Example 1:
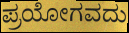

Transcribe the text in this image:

ಪ್ರಯೋಗವದು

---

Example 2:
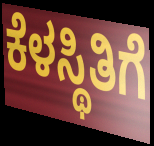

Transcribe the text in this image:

ಕೆಳಸ್ಥಿತಿಗೆ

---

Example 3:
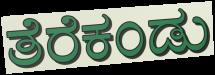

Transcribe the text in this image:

ತೆರೆಕಂಡು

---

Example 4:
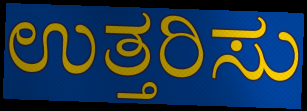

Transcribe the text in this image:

ಉತ್ತರಿಸು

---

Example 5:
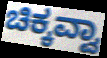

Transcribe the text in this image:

ಚಿಕ್ಕವ್ವಾ